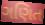
ગણિત